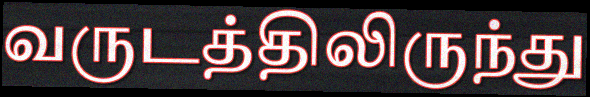
வருடத்திலிருந்து